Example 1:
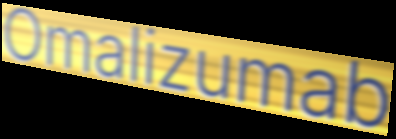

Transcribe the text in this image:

Omalizumab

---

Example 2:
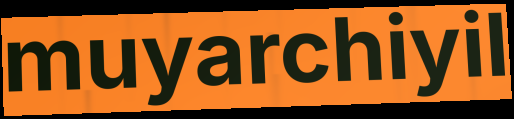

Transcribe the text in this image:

muyarchiyil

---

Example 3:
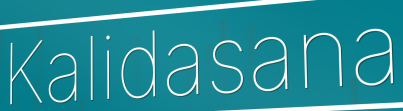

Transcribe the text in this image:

Kalidasana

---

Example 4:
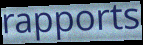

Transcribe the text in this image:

rapports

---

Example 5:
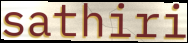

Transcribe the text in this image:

sathiri